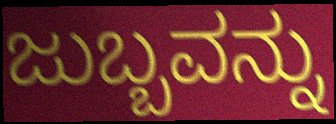
ಜುಬ್ಬವನ್ನು